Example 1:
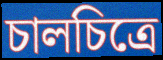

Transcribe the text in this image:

চালচিত্রে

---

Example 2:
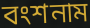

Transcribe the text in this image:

বংশনাম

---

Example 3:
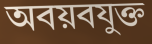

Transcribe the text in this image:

অবয়বযুক্ত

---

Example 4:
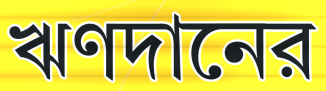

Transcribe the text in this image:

ঋণদানের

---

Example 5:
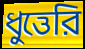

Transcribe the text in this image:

ধুত্তেরি